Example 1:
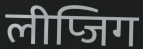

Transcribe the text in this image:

लीप्जिग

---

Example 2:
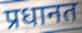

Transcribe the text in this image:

प्रधानत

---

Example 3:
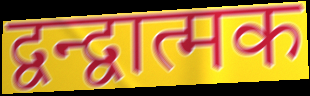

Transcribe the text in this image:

द्वन्द्वात्मक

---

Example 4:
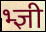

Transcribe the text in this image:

भ्ज्ञी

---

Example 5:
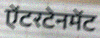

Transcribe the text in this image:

ऐंटरटेनमेंट